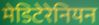
मेडिटेरेनियन